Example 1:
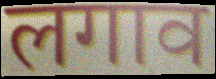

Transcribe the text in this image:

लगाव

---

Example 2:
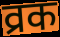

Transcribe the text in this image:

व्रक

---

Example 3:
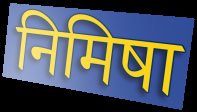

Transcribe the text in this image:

निमिषा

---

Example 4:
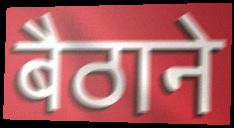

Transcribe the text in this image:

बैठाने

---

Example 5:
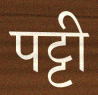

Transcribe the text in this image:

पट्टी